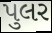
પુલર